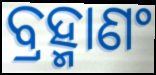
ବ୍ରହ୍ମାଣଂ